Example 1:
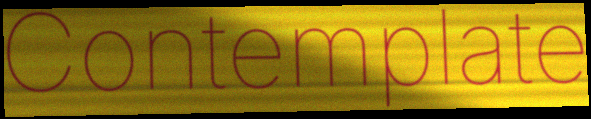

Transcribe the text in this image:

Contemplate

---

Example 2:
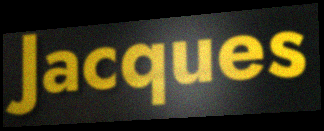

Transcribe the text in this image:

Jacques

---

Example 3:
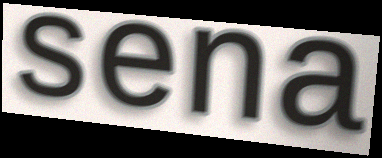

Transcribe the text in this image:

sena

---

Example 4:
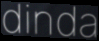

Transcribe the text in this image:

dinda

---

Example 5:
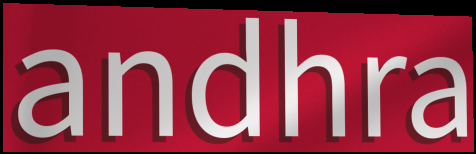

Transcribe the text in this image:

andhra